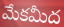
మేకమీద